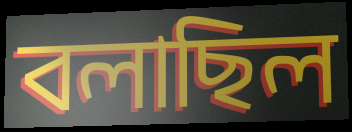
বলাছিল